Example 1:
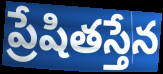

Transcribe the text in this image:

ప్రేషితస్తేన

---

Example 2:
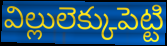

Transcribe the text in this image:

విల్లులెక్కుపెట్టి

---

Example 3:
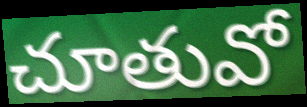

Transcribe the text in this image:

చూతువో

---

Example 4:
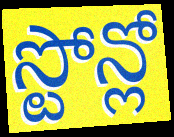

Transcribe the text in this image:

స్టోన్లో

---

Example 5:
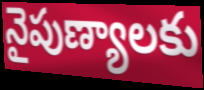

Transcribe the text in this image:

నైపుణ్యాలకు